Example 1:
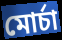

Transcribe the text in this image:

মোর্চা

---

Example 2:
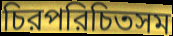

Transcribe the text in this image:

চিরপরিচিতসম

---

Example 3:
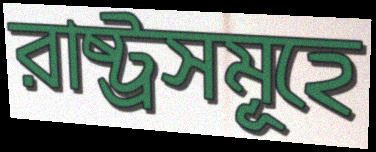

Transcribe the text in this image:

রাষ্ট্রসমূহে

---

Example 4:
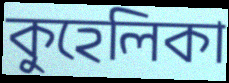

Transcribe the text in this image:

কুহেলিকা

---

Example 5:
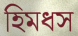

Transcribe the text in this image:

হিমধস